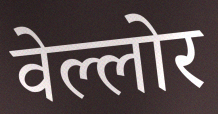
वेल्लोर